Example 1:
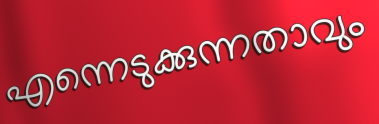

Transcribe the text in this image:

എന്നെടുക്കുന്നതാവും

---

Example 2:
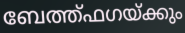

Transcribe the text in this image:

ബേത്ത്ഫഗയ്ക്കും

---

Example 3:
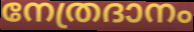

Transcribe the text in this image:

നേത്രദാനം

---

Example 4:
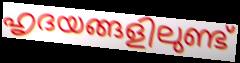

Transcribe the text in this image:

ഹൃദയങ്ങളിലുണ്ട്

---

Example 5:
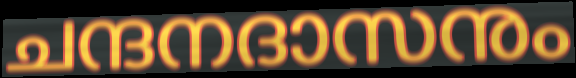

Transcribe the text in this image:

ചന്ദനദാസനും